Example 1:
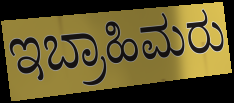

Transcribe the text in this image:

ಇಬ್ರಾಹಿಮರು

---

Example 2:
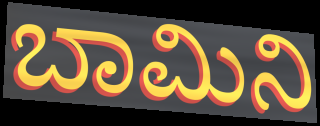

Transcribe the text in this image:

ಬಾಮಿನಿ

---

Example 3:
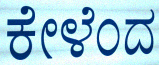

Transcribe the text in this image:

ಕೇಳೆಂದ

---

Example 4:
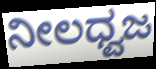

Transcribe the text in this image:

ನೀಲಧ್ವಜ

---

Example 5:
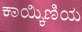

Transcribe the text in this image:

ಕಾಯ್ಕಿಣಿಯ